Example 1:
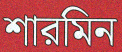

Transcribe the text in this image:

শারমিন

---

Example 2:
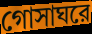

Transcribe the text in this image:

গোসাঘরে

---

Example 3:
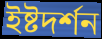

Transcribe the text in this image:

ইষ্টদর্শন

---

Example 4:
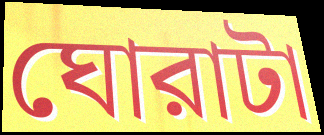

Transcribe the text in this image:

ঘোরাটা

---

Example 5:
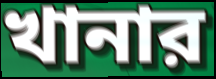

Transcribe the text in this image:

খানার